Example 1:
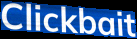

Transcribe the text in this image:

Clickbait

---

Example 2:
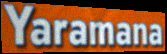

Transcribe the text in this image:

Yaramana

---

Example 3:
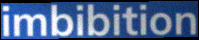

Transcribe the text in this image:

imbibition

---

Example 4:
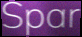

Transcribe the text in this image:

Spar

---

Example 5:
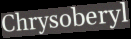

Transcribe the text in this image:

Chrysoberyl